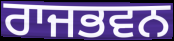
ਰਾਜਭਵਨ